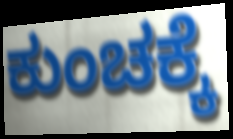
ಕುಂಚಕ್ಕೆ